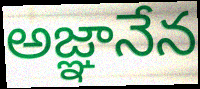
అజ్ఞానేన